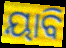
ୟାବି